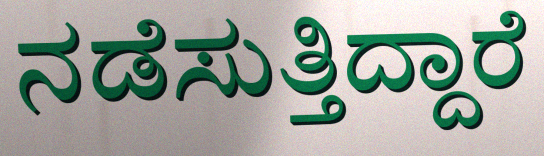
ನಡೆಸುತ್ತಿದ್ದಾರೆ